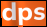
dps